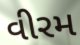
વીરમ